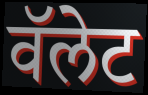
वॅलेट